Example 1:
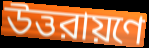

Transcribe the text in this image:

উত্তরায়ণে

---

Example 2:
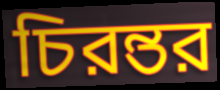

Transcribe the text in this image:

চিরন্তর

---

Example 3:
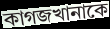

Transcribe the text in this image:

কাগজখানাকে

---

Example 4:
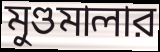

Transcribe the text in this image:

মুণ্ডমালার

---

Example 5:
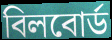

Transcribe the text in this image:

বিলবোর্ড